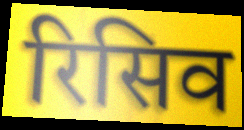
रिसिव